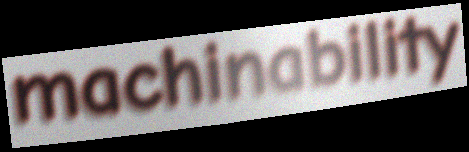
machinability